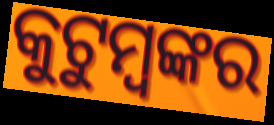
କୁଟୁମ୍ବଙ୍କର